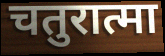
चतुरात्मा